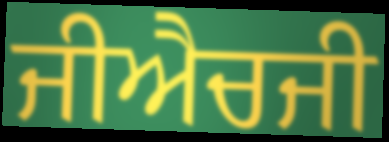
ਜੀਐਚਜੀ